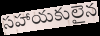
సహాయకులైన